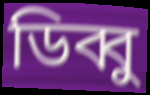
ডিব্বু